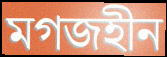
মগজহীন